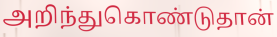
அறிந்துகொண்டுதான்